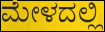
ಮೇಳದಲ್ಲಿ